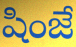
షింజే